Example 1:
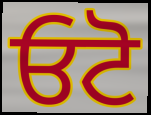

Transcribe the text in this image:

ਓਟੋ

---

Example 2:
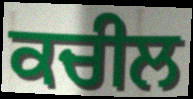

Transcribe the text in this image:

ਕਚੀਲ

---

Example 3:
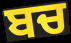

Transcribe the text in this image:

ਬਚ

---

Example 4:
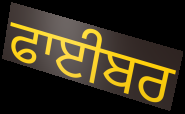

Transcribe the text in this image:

ਫਾਈਬਰ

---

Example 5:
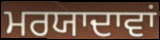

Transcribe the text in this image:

ਮਰਯਾਦਾਵਾਂ